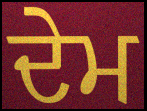
ਦੇਮ